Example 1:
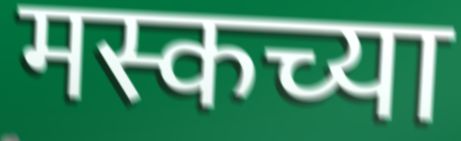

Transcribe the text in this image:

मस्कच्या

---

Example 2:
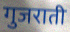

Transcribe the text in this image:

गुजराती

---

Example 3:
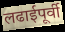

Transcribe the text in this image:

लढाईपूर्वी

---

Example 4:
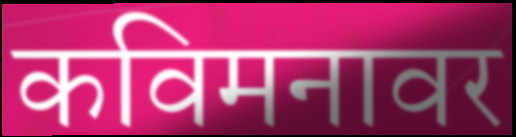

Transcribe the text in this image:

कविमनावर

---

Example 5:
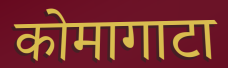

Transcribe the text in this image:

कोमागाटा